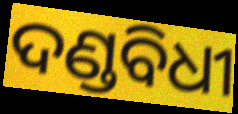
ଦଣ୍ଡବିଧୀ